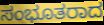
ಸಂಭೂತರಾದ